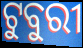
ଟୁବୁରୀ